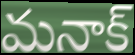
మనాక్